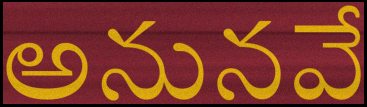
అనునవే